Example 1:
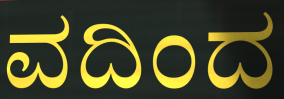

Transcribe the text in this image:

ವದಿಂದ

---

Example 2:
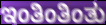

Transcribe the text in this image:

ಇಂತಿಂತಿಂತು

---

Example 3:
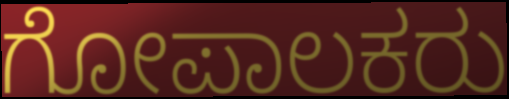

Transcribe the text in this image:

ಗೋಪಾಲಕರು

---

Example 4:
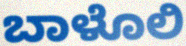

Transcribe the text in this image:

ಬಾಳೊಲಿ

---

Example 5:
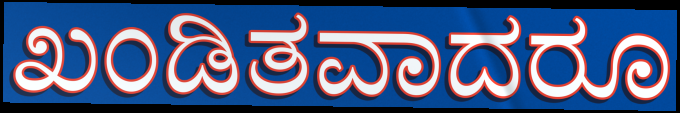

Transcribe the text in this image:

ಖಂಡಿತವಾದರೂ